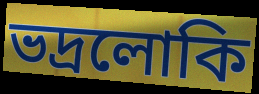
ভদ্রলোকি